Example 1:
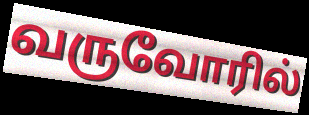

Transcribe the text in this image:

வருவோரில்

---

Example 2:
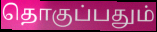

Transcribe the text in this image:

தொகுப்பதும்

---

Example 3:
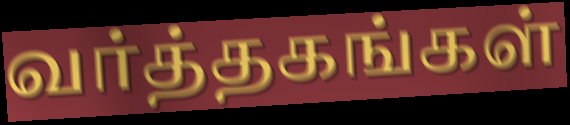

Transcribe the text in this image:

வர்த்தகங்கள்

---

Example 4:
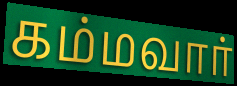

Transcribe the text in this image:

கம்மவார்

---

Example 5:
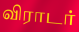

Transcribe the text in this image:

விராடர்